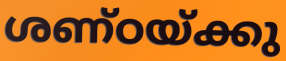
ശണ്ഠയ്ക്കു